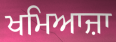
ਖਮਿਆਜ਼ਾ